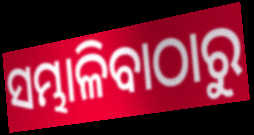
ସମ୍ଭାଳିବାଠାରୁ